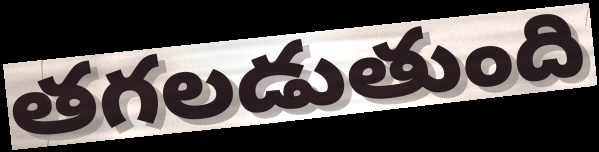
తగలడుతుంది